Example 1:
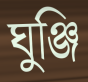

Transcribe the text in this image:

ঘুঞ্জি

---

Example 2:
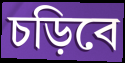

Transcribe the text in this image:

চড়িবে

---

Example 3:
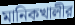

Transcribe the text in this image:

মানিকখালীর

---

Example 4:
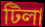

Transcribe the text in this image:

টিলা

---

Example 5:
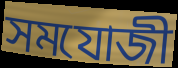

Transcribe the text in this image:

সমযোজী